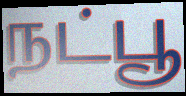
நட்பூ